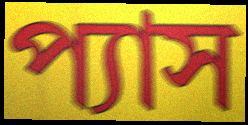
প্যাস